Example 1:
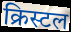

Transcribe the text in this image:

क्रिस्टल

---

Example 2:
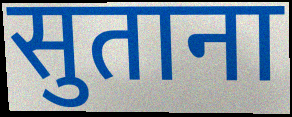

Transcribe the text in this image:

सुताना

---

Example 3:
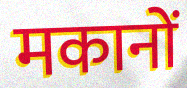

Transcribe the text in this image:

मकानों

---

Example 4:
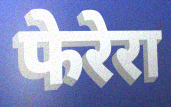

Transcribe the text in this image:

फेरेरा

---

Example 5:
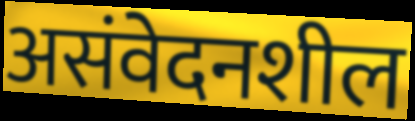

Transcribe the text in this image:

असंवेदनशील